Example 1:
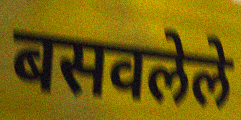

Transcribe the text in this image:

बसवलेले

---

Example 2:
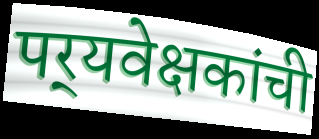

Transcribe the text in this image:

पर्यवेक्षकांची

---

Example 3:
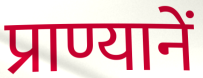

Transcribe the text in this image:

प्राण्यानें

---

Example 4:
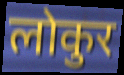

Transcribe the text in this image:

लोकुर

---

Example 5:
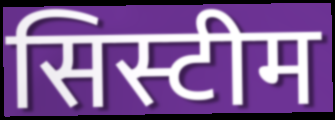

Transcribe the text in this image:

सिस्टीम